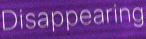
Disappearing